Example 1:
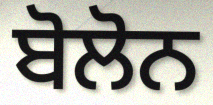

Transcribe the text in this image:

ਬੋਲੋਨ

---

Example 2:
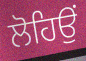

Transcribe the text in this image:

ਲੋਹਿਉਂ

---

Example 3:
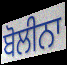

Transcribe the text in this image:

ਬੋਲੀਨਾ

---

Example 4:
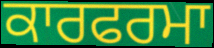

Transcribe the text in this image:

ਕਾਰਫਰਮਾ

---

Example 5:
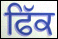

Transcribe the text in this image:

ਫਿੱਕ